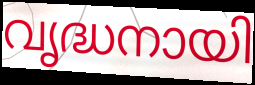
വൃദ്ധനായി